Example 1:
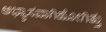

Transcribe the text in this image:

ಅಭ್ಯಾಸವಾಗಿಹೋಗಿತ್ತು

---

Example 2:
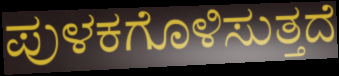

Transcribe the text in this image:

ಪುಳಕಗೊಳಿಸುತ್ತದೆ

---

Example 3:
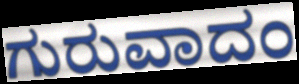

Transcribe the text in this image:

ಗುರುವಾದಂ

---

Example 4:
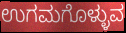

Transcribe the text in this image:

ಉಗಮಗೊಳ್ಳುವ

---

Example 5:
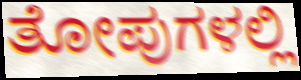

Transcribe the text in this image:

ತೋಪುಗಳಲ್ಲಿ